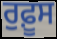
ਰੁਫ਼ੂਸ